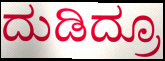
ದುಡಿದ್ರೂ